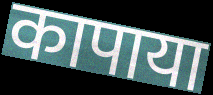
कापाया